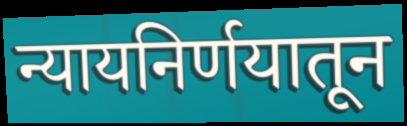
न्यायनिर्णयातून